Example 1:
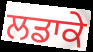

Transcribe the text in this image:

ਲਡਾਕੇ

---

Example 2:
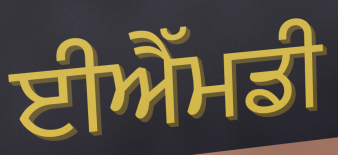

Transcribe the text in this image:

ਈਐੱਮਡੀ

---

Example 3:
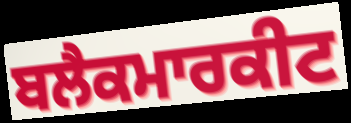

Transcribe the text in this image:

ਬਲੈਕਮਾਰਕੀਟ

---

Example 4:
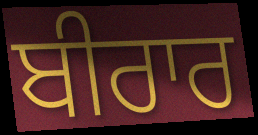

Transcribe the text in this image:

ਬੀਰਾਰ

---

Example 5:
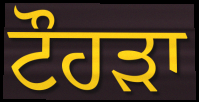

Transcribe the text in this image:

ਟੌਹਡ਼ਾ